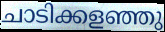
ചാടിക്കളഞ്ഞു